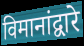
विमानांद्वारे